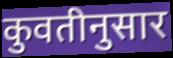
कुवतीनुसार